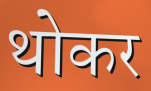
थोकर